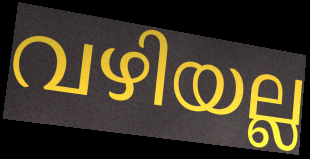
വഴിയല്ല